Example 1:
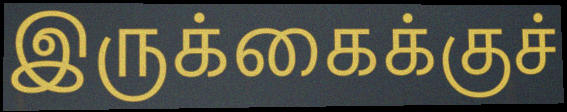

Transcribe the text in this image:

இருக்கைக்குச்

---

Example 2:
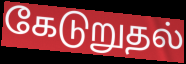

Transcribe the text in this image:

கேடுறுதல்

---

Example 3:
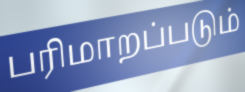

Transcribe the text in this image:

பரிமாறப்படும்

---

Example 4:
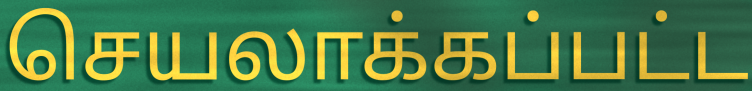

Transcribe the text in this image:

செயலாக்கப்பட்ட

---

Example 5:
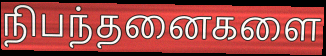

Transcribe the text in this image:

நிபந்தனைகளை